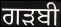
ਗੜਬੀ